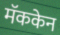
मॅककेन